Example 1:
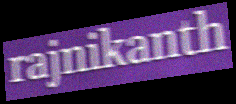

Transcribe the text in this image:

rajnikanth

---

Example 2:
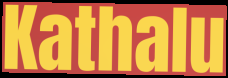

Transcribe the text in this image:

Kathalu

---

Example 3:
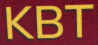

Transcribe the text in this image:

KBT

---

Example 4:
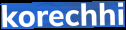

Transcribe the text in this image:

korechhi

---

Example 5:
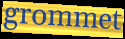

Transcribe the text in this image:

grommet